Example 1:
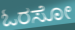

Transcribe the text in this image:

ಓರಸೋ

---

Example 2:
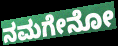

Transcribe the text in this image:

ನಮಗೇನೋ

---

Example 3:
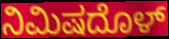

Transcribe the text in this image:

ನಿಮಿಷದೊಳ್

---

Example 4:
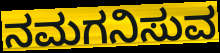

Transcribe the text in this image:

ನಮಗನಿಸುವ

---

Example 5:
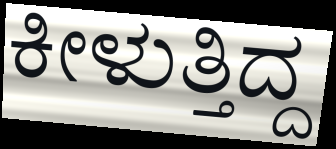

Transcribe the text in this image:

ಕೀಳುತ್ತಿದ್ದ